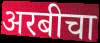
अरबीचा